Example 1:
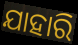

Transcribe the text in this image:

ଯାହାରି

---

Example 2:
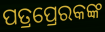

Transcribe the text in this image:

ପତ୍ରପ୍ରେରକଙ୍କ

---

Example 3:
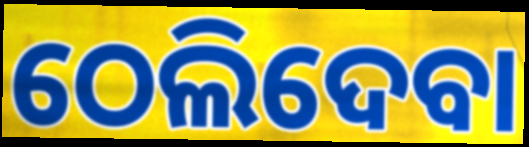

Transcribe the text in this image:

ଠେଲିଦେବା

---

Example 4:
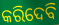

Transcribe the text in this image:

କରିଦେବି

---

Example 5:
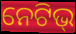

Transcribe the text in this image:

ନେଟିଭ୍